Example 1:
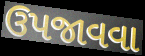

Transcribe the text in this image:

ઉપજાવવા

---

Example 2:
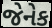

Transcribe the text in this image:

જેનેક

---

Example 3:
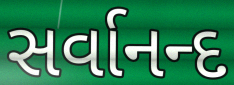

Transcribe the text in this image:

સર્વાનન્દ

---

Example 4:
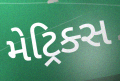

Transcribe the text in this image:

મેટ્રિક્સ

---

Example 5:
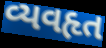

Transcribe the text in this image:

વ્યવહૃત